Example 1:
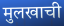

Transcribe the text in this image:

मुलखाची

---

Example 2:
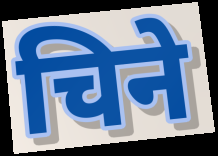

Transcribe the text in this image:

चिने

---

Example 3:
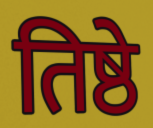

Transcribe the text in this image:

तिष्ठे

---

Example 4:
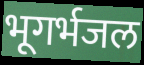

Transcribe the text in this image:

भूगर्भजल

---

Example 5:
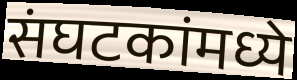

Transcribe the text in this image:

संघटकांमध्ये